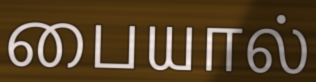
பையால்